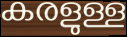
കരളുള്ള